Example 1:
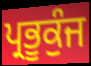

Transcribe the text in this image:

ਪ੍ਰਭੂਕੁੰਜ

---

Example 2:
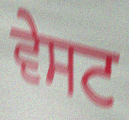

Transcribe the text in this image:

ਵੇਸਟ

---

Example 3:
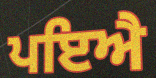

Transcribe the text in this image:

ਪਇਐ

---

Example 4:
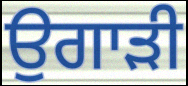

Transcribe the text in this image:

ਉਗਾੜੀ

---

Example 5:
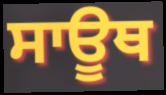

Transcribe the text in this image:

ਸਾਊਥ